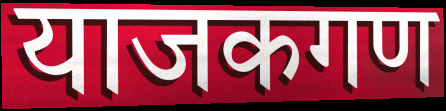
याजकगण